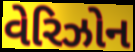
વેરિઝોન